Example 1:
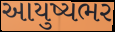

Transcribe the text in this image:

આયુષ્યભર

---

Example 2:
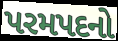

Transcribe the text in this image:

પરમપદનો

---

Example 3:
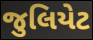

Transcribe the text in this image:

જુલિયેટ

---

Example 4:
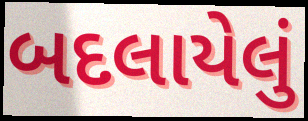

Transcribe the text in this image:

બદલાયેલું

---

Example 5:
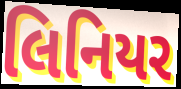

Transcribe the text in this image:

લિનિયર